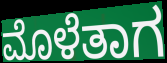
ಮೊಳೆತಾಗ